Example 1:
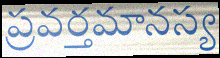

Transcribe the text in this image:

ప్రవర్తమానస్య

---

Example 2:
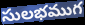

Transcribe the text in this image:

సులభముగ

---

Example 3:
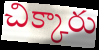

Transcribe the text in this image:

చిక్కారు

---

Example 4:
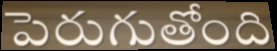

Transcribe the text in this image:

పెరుగుతోంది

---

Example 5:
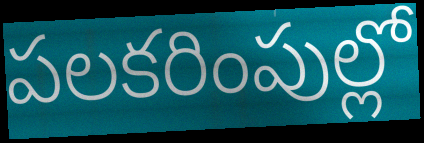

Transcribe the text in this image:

పలకరింపుల్లో